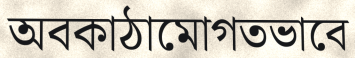
অবকাঠামোগতভাবে